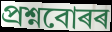
প্ৰশ্নবোৰৰ